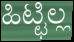
ಹಿಟ್ಟಿಲ್ಲ